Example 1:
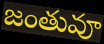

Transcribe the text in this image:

జంతువూ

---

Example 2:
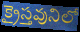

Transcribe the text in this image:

క్రైస్తవునిలో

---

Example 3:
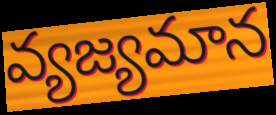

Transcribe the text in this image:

వ్యజ్యమాన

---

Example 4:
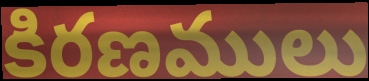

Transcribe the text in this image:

కిరణములు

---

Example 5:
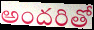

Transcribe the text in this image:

అందరితో